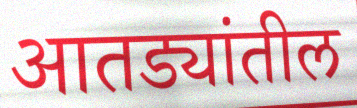
आतड्यांतील